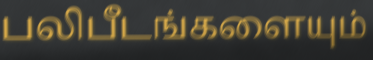
பலிபீடங்களையும்